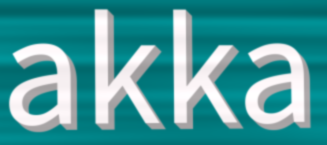
akka